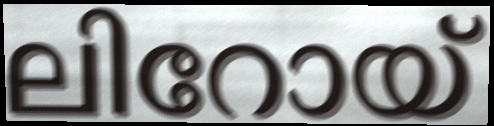
ലിറോയ്